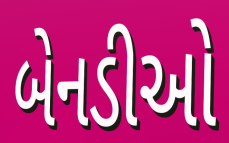
બેનડીઓ